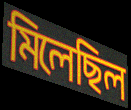
মিলেছিল